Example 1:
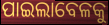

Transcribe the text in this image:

ପାଇଲାବେଳକୁ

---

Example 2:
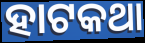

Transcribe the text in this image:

ହାଟକଥା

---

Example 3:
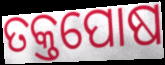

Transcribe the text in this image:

ତକ୍ତପୋଷ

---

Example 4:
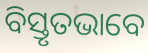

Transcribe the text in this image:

ବିସ୍ତୃତଭାବେ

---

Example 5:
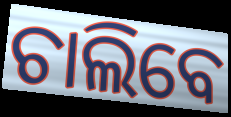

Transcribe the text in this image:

ଚାଲିବେ